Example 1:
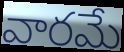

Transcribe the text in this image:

వారమే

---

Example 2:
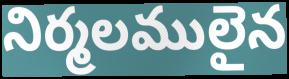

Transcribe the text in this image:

నిర్మలములైన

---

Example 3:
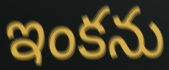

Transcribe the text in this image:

ఇంకను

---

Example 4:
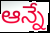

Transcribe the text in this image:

ఆన్నే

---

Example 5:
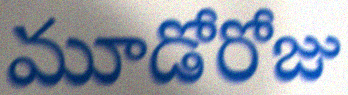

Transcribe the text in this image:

మూడోరోజు